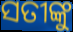
ସତୀଙ୍କୁ